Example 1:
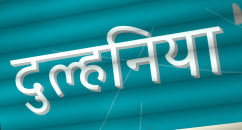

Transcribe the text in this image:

दुल्हनिया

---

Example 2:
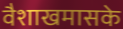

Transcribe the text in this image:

वैशाखमासके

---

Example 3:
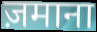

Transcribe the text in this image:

ज़माना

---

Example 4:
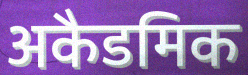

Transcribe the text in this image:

अकैडमिक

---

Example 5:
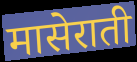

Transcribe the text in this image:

मासेराती